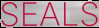
SEALS